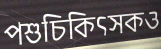
পশুচিকিৎসকও